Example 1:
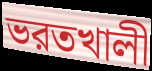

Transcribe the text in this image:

ভরতখালী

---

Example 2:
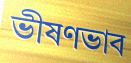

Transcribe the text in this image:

ভীষণভাব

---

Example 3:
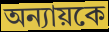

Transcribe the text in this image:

অন্যায়কে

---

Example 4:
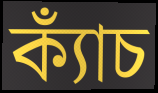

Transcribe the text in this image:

ক্যাঁচ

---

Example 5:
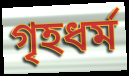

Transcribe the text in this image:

গৃহধর্ম